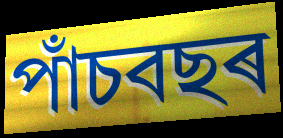
পাঁচবছৰ